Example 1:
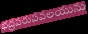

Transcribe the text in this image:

భద్రపరుపవలయును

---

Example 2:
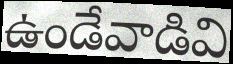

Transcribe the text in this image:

ఉండేవాడివి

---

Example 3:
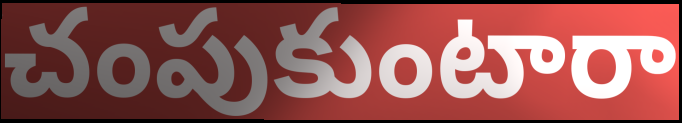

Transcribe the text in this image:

చంపుకుంటారా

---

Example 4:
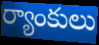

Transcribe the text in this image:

ర్యాంకులు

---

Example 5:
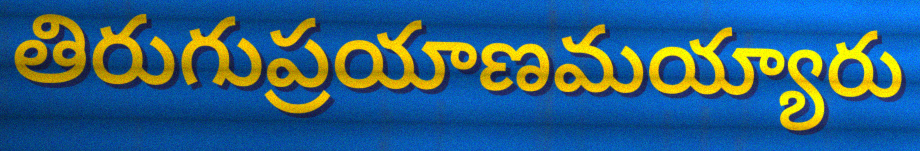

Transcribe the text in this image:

తిరుగుప్రయాణమయ్యారు